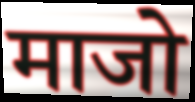
माजो